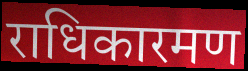
राधिकारमण